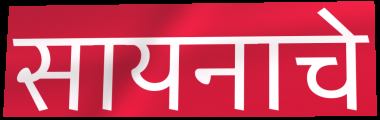
सायनाचे